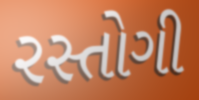
રસ્તોગી